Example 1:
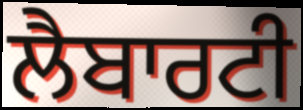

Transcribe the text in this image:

ਲੈਬਾਰਟੀ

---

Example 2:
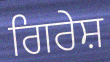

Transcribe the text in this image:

ਗਿਰੇਸ਼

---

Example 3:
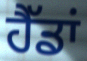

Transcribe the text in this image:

ਹੈੱਡਾਂ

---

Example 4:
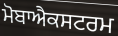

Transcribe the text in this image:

ਮੋਬਾਐਕਸਟਰਮ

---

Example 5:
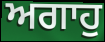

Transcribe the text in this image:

ਅਗਾਹੁ